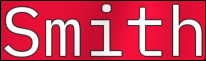
Smith